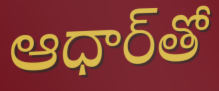
ఆధార్‌తో